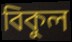
বিকুল